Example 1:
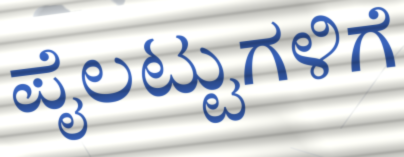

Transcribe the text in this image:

ಪೈಲಟ್ಟುಗಳಿಗೆ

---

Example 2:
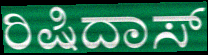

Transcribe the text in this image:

ರಿಷಿದಾಸ್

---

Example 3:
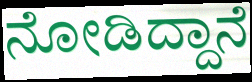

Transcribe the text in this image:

ನೋಡಿದ್ದಾನೆ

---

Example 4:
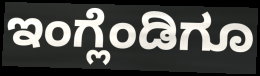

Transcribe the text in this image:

ಇಂಗ್ಲೆಂಡಿಗೂ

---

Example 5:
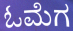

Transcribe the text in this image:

ಓಮೆಗ